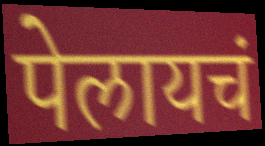
पेलायचं